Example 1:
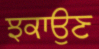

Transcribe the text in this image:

ਝਕਾਉਣ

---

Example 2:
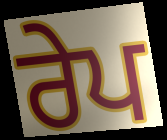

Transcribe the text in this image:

ਰੇਪ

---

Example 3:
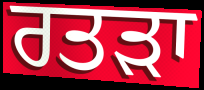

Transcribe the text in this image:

ਰਤੜਾ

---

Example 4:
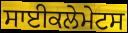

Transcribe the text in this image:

ਸਾਈਕਲੇਮੇਟਸ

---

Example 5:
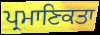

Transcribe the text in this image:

ਪ੍ਰਮਾਣਿਕਤਾ